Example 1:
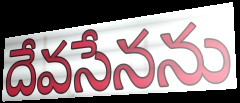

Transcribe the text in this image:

దేవసేనను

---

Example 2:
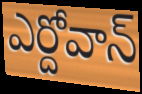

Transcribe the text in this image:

ఎర్దోవాన్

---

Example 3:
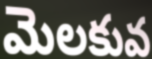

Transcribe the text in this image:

మెలకువ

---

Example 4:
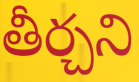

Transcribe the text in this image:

తీర్చని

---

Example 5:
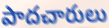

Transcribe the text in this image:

పాదచారులు